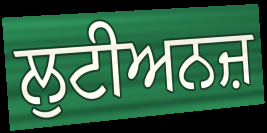
ਲੁਟੀਅਨਜ਼